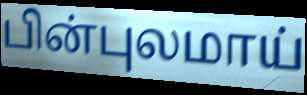
பின்புலமாய்